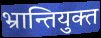
भ्रान्तियुक्त